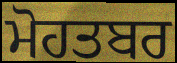
ਮੋਹਤਬਰ